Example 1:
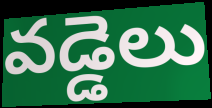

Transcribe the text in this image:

వడ్డెలు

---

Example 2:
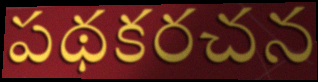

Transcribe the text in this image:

పథకరచన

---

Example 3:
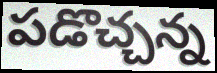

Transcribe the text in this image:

పడొచ్చన్న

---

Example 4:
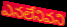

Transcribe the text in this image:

ఎనలేనివని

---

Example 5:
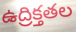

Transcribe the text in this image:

ఉద్రిక్తతల